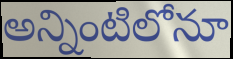
అన్నింటిలోనూ